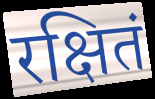
रक्षितं